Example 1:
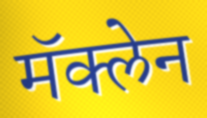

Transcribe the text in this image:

मॅक्लेन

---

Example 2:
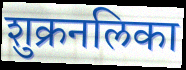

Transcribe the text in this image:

शुक्रनलिका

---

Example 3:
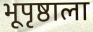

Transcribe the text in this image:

भूपृष्ठाला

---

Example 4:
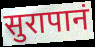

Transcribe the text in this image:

सुरापानं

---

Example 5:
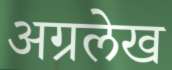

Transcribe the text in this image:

अग्रलेख